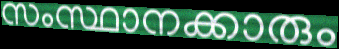
സംസ്ഥാനക്കാരും